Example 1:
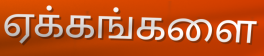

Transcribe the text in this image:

ஏக்கங்களை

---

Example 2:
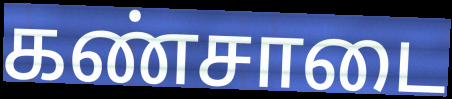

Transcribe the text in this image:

கண்சாடை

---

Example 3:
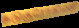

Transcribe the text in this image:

கடுகுரோகிணி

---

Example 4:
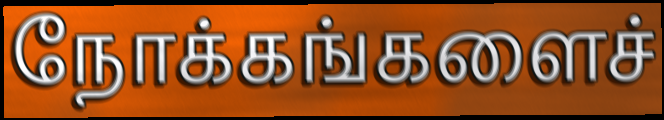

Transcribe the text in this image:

நோக்கங்களைச்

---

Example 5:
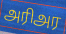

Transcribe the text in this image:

அரிஅர